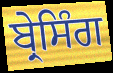
ਬ੍ਰੇਸਿੰਗ